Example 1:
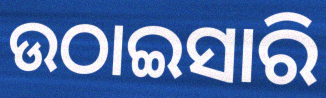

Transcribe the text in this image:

ଉଠାଇସାରି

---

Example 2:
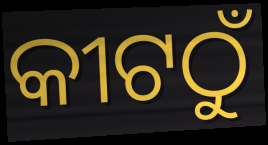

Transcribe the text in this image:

କୀଟଠୁଁ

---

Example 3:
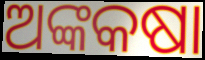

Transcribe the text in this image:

ଅଙ୍କକଷା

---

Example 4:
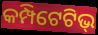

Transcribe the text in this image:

କମ୍ପିଟେଟିଭ୍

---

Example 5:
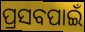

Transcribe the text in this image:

ପ୍ରସବପାଇଁ